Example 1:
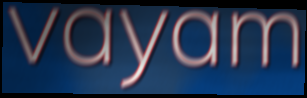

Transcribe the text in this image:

vayam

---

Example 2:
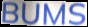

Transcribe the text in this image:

BUMS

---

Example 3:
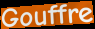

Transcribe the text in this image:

Gouffre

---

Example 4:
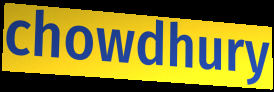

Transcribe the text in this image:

chowdhury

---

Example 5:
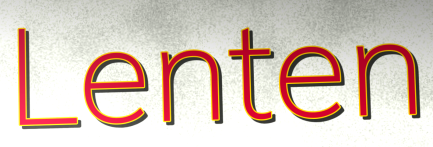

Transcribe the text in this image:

Lenten